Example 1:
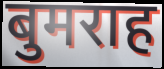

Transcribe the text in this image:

बुमराह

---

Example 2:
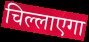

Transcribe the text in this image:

चिल्लाएगा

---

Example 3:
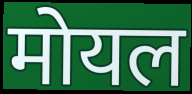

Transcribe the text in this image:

मोयल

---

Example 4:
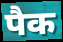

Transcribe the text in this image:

पैक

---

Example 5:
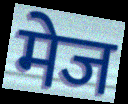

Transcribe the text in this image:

मेज